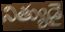
నిత్యుడై